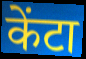
केंटा